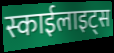
स्काईलाइट्स